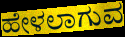
ಹೇಳಲಾಗುವ